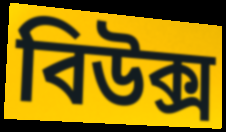
বিউক্স